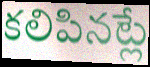
కలిపినట్లే